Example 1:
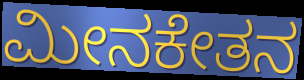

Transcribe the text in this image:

ಮೀನಕೇತನ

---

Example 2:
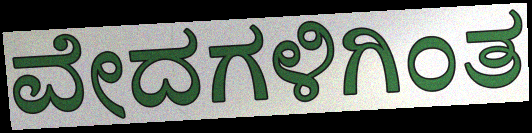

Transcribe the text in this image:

ವೇದಗಳಿಗಿಂತ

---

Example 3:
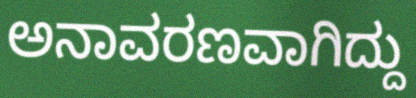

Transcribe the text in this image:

ಅನಾವರಣವಾಗಿದ್ದು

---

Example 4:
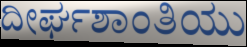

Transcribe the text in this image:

ದೀರ್ಘಶಾಂತಿಯು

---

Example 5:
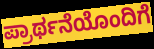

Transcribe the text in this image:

ಪ್ರಾರ್ಥನೆಯೊಂದಿಗೆ